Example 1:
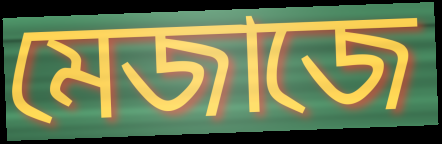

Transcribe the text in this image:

মেজাজে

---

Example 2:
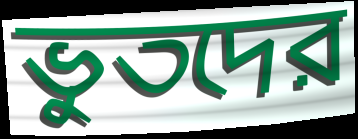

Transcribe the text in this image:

ভুতদের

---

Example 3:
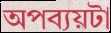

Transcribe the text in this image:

অপব্যয়টা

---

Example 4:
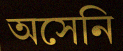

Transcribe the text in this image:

অসেনি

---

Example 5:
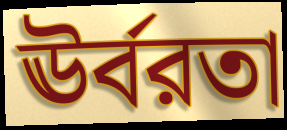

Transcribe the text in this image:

ঊর্বরতা